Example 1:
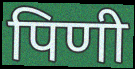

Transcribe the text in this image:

पिणी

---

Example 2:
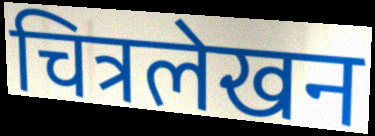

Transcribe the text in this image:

चित्रलेखन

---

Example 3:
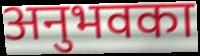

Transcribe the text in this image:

अनुभवका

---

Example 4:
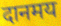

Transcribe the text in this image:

दानमय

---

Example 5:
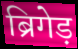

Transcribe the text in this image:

ब्रिगेड़